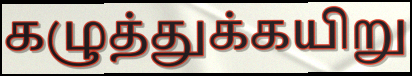
கழுத்துக்கயிறு